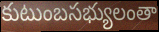
కుటుంబసభ్యులంతా